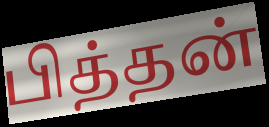
பித்தன்